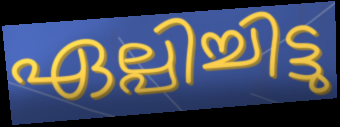
ഏല്പിച്ചിട്ടു